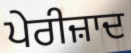
ਪੇਰੀਜ਼ਾਦ